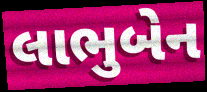
લાભુબેન